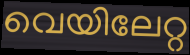
വെയിലേറ്റ